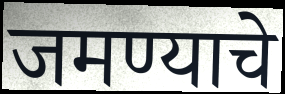
जमण्याचे